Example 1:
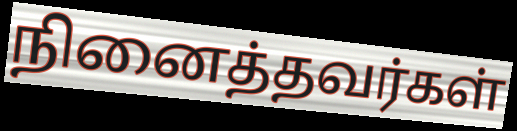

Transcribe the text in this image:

நினைத்தவர்கள்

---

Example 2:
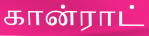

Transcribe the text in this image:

கான்ராட்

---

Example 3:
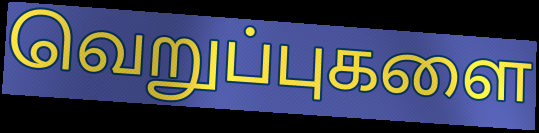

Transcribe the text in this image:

வெறுப்புகளை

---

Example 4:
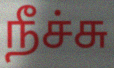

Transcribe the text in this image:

நீச்சு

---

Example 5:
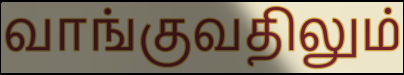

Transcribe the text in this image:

வாங்குவதிலும்